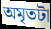
অমৃতটা